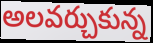
అలవర్చుకున్న